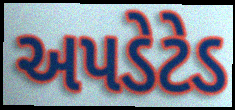
અપડેટેડ